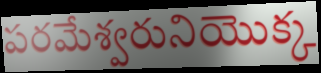
పరమేశ్వరునియొక్క